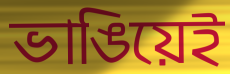
ভাঙিয়েই